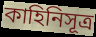
কাহিনিসূত্র